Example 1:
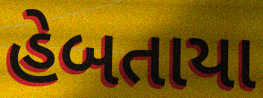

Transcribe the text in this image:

હેબતાયા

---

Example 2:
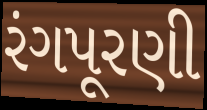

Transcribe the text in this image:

રંગપૂરણી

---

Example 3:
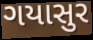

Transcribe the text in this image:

ગયાસુર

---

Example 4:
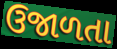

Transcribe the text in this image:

ઉજાળતા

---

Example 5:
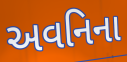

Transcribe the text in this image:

અવનિના